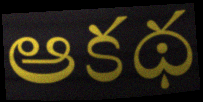
ఆకథ